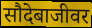
सौदेबाजीवर